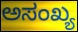
ಅಸಂಖ್ಯ